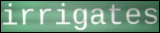
irrigates